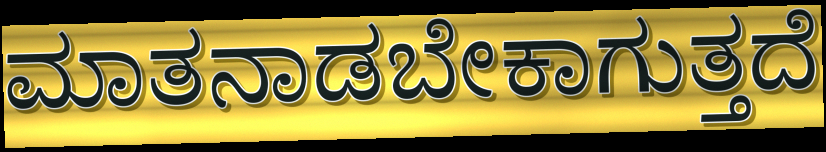
ಮಾತನಾಡಬೇಕಾಗುತ್ತದೆ